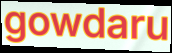
gowdaru